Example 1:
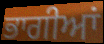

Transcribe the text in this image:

ਭਾਗੀਆਂ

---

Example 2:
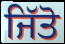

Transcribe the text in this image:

ਜਿੱਤੋ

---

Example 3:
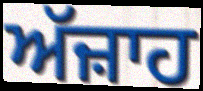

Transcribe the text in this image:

ਅੱਜ਼ਾਹ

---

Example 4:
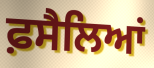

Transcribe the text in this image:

ਫ਼ਸੈਲਿਆਂ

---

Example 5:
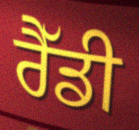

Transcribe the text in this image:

ਰੈੱਡੀ